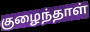
குழைந்தாள்